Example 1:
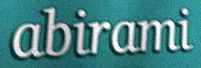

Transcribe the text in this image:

abirami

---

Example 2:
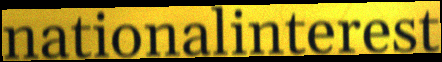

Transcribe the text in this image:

nationalinterest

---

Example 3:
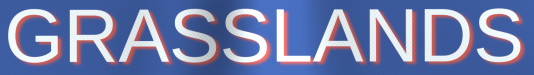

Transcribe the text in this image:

GRASSLANDS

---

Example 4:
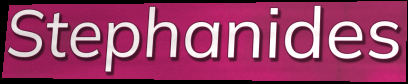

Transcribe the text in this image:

Stephanides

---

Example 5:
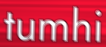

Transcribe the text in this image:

tumhi